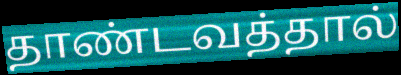
தாண்டவத்தால்